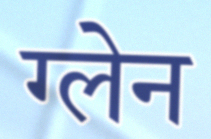
ग्लेन